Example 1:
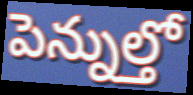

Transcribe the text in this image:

పెన్నుల్తో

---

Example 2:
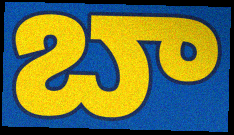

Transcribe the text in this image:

బా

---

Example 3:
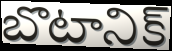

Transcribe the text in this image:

బొటానిక్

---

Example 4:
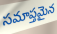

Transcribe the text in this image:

సమాప్తమైన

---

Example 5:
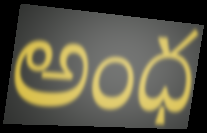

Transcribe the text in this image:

అంధ